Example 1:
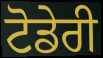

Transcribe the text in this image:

ਟੋਡੇਰੀ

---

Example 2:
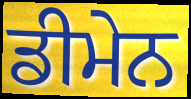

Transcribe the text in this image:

ਡੀਮੇਨ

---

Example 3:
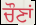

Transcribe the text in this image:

ਚੌਣਾਂ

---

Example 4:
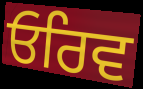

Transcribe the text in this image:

ਓਰਿਵ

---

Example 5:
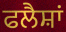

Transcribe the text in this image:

ਫਲੈਸ਼ਾਂ